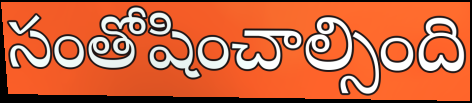
సంతోషించాల్సింది